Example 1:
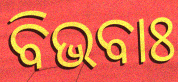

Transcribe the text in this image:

ବିଭବାଃ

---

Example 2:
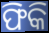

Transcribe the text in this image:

ଫିକି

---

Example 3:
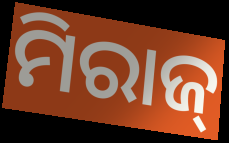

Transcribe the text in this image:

ମିରାଜ୍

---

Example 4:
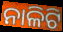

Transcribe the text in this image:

ନାଳିଟି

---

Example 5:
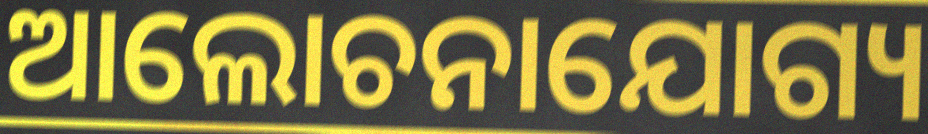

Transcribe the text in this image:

ଆଲୋଚନାଯୋଗ୍ୟ